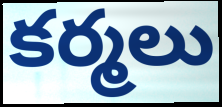
కర్మలు